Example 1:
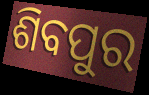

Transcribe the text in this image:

ଶିବପୁର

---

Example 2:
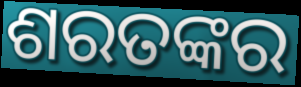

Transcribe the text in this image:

ଶରତଙ୍କର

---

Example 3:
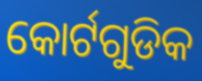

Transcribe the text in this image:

କୋର୍ଟଗୁଡିକ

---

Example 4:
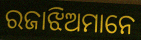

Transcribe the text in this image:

ରଜାଝିଅମାନେ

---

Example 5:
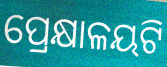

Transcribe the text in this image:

ପ୍ରେକ୍ଷାଳୟଟି